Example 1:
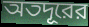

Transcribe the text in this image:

অতদূরের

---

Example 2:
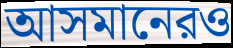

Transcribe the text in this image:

আসমানেরও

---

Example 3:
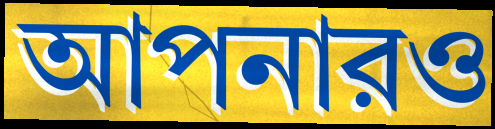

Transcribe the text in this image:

আপনারও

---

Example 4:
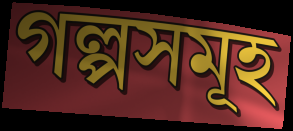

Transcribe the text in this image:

গল্পসমূহ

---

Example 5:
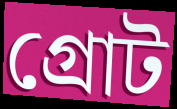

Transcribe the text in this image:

গ্রোট